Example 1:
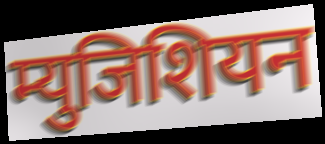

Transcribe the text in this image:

म्‍युजिशियन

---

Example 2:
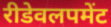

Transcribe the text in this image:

रीडेवलपमेंट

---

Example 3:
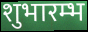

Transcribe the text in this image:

शुभारम्भ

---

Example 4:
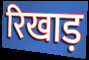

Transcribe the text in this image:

रिखाड़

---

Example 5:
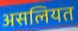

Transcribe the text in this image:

असलियत